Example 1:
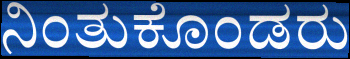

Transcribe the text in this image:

ನಿಂತುಕೊಂಡರು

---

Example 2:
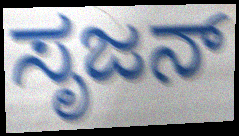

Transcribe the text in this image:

ಸೃಜನ್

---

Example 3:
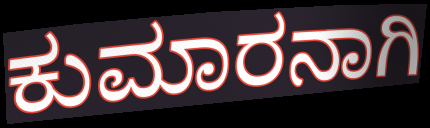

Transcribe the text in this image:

ಕುಮಾರನಾಗಿ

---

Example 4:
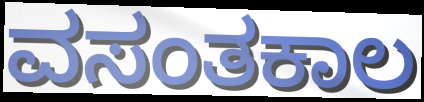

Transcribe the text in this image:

ವಸಂತಕಾಲ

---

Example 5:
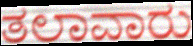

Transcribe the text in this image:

ತಲಾವಾರು